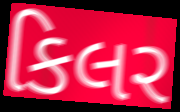
કિલર